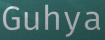
Guhya